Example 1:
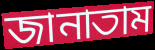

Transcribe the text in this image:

জানাতাম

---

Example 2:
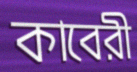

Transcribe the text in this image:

কাবেরী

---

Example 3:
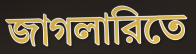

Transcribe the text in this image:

জাগলারিতে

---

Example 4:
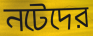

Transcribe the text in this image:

নটেদের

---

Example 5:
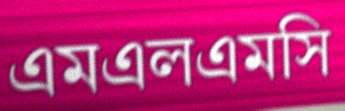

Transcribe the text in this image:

এমএলএমসি